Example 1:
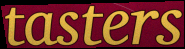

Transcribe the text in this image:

tasters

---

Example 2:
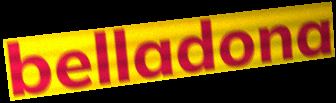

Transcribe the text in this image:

belladona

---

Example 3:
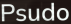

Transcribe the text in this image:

Psudo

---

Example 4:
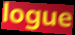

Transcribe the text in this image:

logue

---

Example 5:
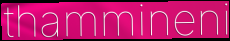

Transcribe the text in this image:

thammineni